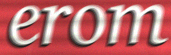
erom